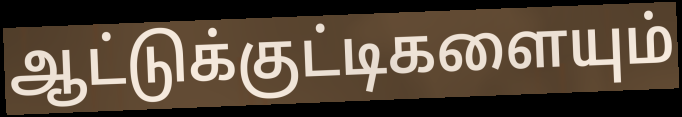
ஆட்டுக்குட்டிகளையும்